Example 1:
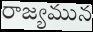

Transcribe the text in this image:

రాజ్యమున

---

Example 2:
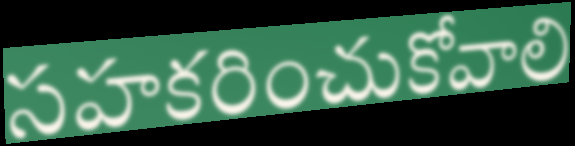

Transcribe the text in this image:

సహకరించుకోవాలి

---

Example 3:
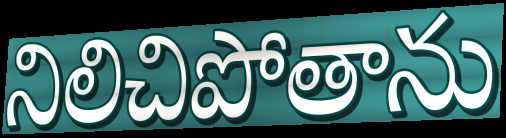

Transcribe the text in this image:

నిలిచిపోతాను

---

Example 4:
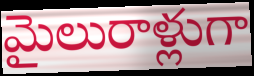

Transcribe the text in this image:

మైలురాళ్లుగా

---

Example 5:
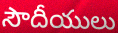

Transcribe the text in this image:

సౌదీయులు